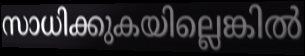
സാധിക്കുകയില്ലെങ്കിൽ